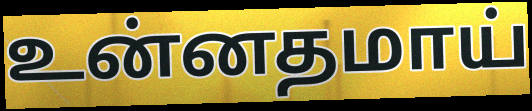
உன்னதமாய்